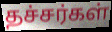
தச்சர்கள்